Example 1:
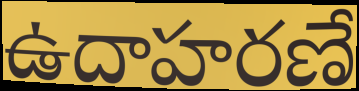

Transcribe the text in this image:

ఉదాహరణే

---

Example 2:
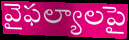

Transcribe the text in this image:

వైఫల్యాలపై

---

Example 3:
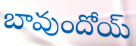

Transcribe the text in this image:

బావుందోయ్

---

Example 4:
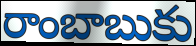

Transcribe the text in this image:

రాంబాబుకు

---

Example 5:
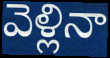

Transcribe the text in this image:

వెళ్లినా